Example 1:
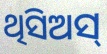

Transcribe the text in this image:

ଥିସିଅସ୍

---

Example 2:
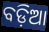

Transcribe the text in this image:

ବଡ଼ିଆ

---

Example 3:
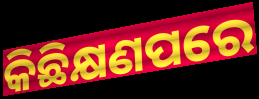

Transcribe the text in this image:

କିଛିକ୍ଷଣପରେ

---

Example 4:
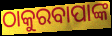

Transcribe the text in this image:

ଠାକୁରବାପାଙ୍କ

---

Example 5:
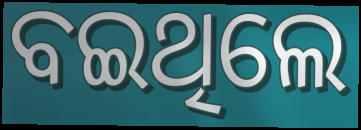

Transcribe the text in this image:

ବଇଥିଲେ